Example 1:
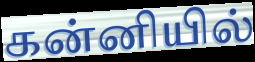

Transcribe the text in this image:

கன்னியில்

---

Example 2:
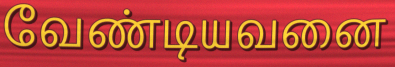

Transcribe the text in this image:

வேண்டியவனை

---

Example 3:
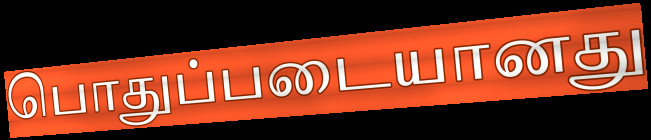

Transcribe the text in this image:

பொதுப்படையானது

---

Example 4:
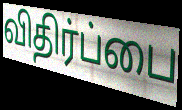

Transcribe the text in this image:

விதிர்ப்பை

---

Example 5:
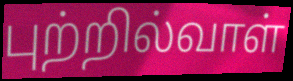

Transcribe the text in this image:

புற்றில்வாள்